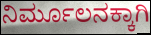
ನಿರ್ಮೂಲನಕ್ಕಾಗಿ